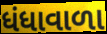
ધંધાવાળા